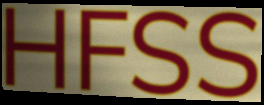
HFSS